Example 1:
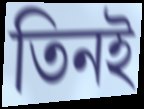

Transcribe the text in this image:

তিনই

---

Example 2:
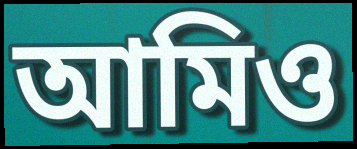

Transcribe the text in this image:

আমিও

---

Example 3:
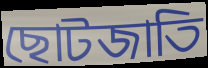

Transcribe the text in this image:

ছোটজাতি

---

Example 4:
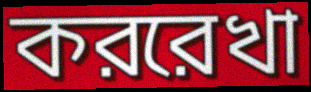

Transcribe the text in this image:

কররেখা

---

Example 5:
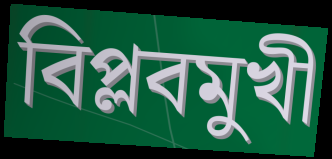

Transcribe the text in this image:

বিপ্লবমুখী